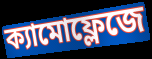
ক্যামোফ্লেজে